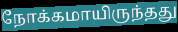
நோக்கமாயிருந்தது